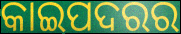
କାଇପଦରର